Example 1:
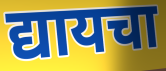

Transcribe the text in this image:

द्यायचा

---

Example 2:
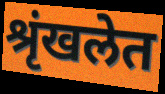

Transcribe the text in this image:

श्रृंखलेत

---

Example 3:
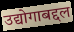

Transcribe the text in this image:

उद्योगाबद्दल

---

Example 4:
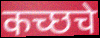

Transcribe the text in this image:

कच्छचे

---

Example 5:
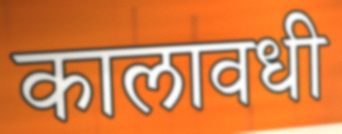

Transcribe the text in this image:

कालावधी